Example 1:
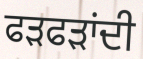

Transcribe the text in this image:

ਫੜਫੜਾਂਦੀ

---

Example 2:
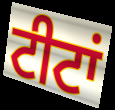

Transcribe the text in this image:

ਟੀਟਾਂ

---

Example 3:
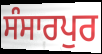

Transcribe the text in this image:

ਸੰਸਾਰਪੁਰ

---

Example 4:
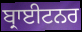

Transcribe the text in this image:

ਬ੍ਰਾਈਟਨਰ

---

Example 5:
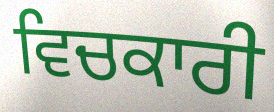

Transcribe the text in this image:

ਵਿਚਕਾਰੀ